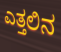
ಎತ್ತಲಿನ